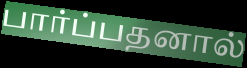
பார்ப்பதனால்